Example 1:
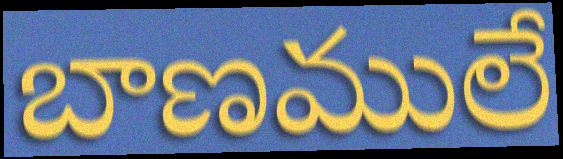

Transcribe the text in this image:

బాణములే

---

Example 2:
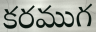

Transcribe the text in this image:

కరముగ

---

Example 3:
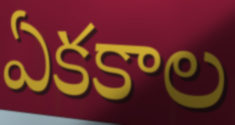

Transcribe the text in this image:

ఏకకాల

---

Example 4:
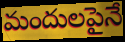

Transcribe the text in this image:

మందులపైనే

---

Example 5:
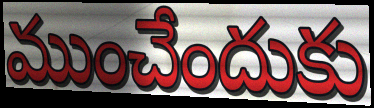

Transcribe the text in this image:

ముంచేందుకు